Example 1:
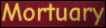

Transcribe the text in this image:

Mortuary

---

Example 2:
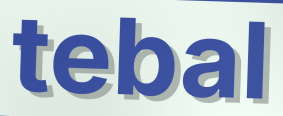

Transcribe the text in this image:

tebal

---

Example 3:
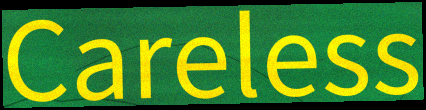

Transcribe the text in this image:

Careless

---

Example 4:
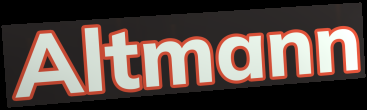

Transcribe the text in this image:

Altmann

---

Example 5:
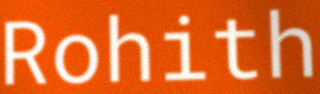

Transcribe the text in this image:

Rohith